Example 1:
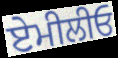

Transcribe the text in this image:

ਏਮੀਲੀਓ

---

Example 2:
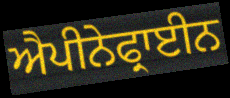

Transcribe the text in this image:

ਐਪੀਨੇਫ੍ਰਾਈਨ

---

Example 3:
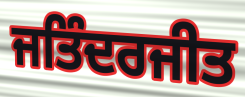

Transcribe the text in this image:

ਜਤਿੰਦਰਜੀਤ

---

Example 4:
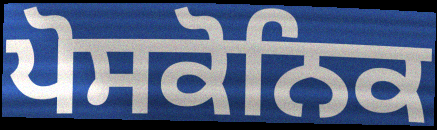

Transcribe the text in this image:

ਪੋਸਕੋਨਿਕ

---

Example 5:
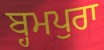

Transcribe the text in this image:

ਬ੍ਹਮਪੁਰਾ